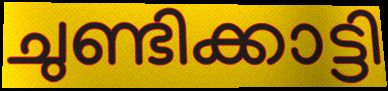
ചുണ്ടിക്കാട്ടി